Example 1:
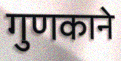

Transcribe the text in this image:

गुणकाने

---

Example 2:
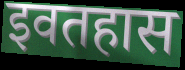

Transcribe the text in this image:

इवतहास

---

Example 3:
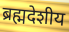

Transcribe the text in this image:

ब्रह्मदेशीय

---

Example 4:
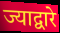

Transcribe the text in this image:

ज्याद्वारे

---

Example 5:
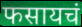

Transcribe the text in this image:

फसायचं